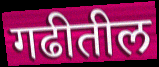
गढीतील